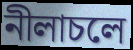
নীলাচলে